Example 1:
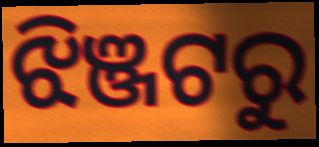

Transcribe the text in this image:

ଝିଞ୍ଜଟରୁ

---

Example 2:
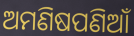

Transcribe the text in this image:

ଅମଣିଷପଣିଆଁ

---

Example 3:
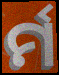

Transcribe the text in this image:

ର୍ମ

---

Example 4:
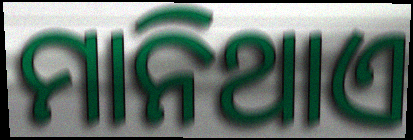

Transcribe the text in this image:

ମାନିଥାଏ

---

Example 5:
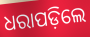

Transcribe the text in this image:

ଧରାପଡ଼ିଲେ